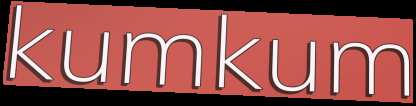
kumkum